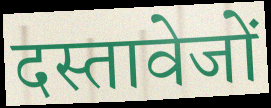
दस्तावेजों